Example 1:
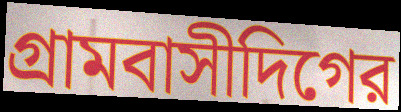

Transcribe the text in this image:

গ্রামবাসীদিগের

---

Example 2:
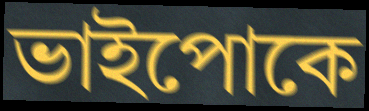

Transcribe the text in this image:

ভাইপোকে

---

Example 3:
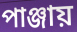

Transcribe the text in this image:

পাঞ্জায়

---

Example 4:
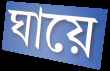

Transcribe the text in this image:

ঘায়ে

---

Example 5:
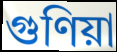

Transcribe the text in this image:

গুণিয়া